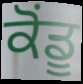
ਕੋਂਡੂ